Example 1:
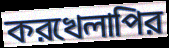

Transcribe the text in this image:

করখেলাপির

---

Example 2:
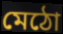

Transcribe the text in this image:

মেঠো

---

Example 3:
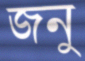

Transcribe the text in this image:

জনু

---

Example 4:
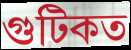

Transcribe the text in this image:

গুটিকত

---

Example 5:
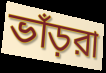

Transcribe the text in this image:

ভাঁড়রা